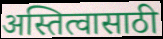
अस्तित्वासाठी